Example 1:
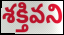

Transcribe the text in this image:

శక్తివని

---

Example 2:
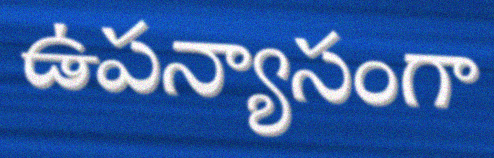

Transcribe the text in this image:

ఉపన్యాసంగా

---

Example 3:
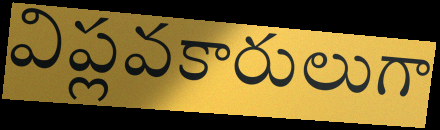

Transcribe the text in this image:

విప్లవకారులుగా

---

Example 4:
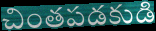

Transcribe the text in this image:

చింతపడకుడి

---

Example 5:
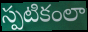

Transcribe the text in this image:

స్పటికంలా